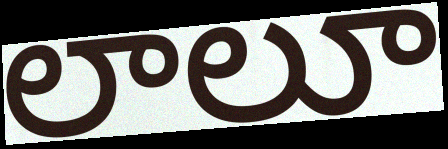
లాలూ